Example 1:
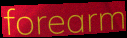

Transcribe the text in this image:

forearm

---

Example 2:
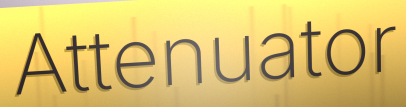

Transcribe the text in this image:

Attenuator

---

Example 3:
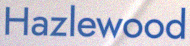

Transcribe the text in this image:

Hazlewood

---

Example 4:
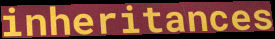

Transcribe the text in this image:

inheritances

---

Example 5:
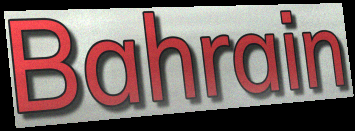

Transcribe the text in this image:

Bahrain